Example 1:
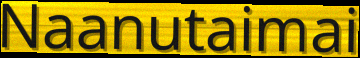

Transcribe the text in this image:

Naanutaimai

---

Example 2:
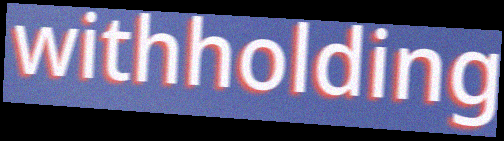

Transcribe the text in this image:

withholding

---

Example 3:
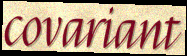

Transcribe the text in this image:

covariant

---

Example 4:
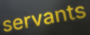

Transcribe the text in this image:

servants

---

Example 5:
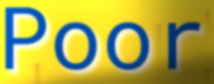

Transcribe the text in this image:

Poor